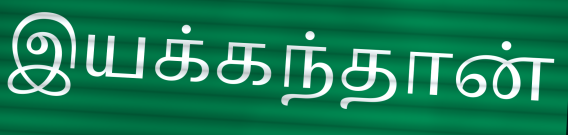
இயக்கந்தான்